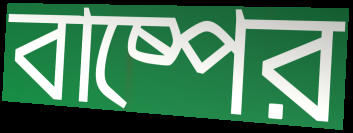
বাষ্পের